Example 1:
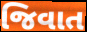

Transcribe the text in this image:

જિવાત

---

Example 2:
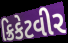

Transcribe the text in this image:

ક્રિકેટવીર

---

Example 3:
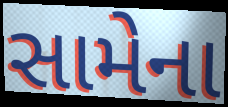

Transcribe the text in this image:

સામેના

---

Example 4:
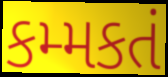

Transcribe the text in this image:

કમ્મકતં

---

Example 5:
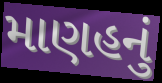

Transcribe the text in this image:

માણહનું